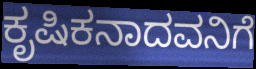
ಕೃಷಿಕನಾದವನಿಗೆ